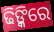
ଢିଙ୍କିରେ